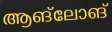
ആങ്‌ലോങ്